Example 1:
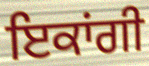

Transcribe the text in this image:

ਇਕਾਂਗੀ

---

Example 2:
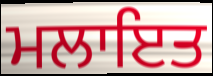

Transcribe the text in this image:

ਮਲਾਇਤ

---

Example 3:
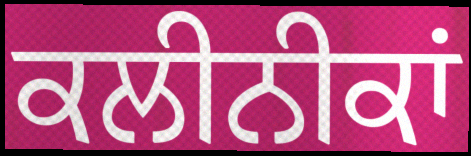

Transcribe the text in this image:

ਕਲੀਨੀਕਾਂ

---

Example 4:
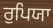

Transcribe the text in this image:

ਰੁਪਿਯਾ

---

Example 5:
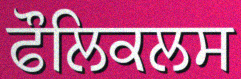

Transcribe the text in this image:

ਫੌਲਿਕਲਸ